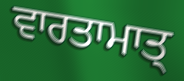
ਵਾਰਤਾਮਾਤ੍